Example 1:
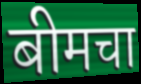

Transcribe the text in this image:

बीमचा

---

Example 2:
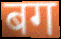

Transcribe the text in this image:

बग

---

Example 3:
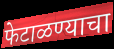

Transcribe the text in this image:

फेटाळण्याचा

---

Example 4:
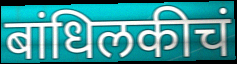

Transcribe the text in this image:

बांधिलकीचं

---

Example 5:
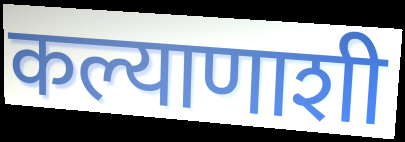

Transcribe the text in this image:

कल्याणाशी